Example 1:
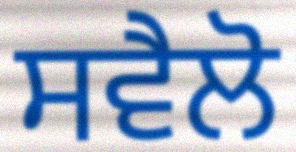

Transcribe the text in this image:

ਸਵੈਲੋ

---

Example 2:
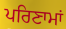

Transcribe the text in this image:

ਪਰਿਣਾਮਾਂ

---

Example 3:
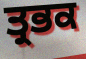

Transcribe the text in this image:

ਤ੍ਰਭਕ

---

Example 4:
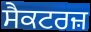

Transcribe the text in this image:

ਸੈਕਟਰਜ਼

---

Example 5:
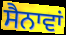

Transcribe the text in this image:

ਸੈਨਾਵਾਂ